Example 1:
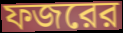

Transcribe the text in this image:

ফজরের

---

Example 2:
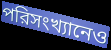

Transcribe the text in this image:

পরিসংখ্যানেও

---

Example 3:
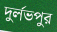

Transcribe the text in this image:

দুর্লভপুর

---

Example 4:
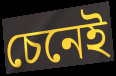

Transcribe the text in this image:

চেনেই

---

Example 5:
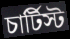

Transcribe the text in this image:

চার্টিস্ট